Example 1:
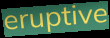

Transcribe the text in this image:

eruptive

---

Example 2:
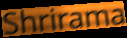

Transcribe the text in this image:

Shrirama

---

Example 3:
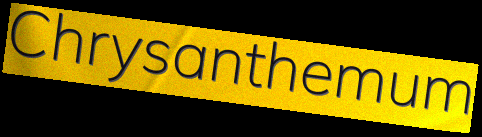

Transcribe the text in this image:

Chrysanthemum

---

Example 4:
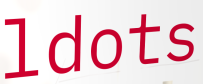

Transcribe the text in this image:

ldots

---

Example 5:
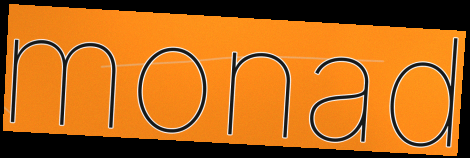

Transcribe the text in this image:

monad